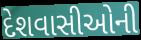
દેશવાસીઓની